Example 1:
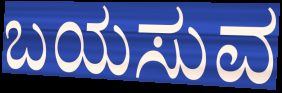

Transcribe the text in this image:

ಬಯಸುವ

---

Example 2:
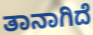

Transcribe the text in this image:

ತಾನಾಗಿದೆ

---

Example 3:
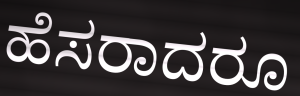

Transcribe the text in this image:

ಹೆಸರಾದರೂ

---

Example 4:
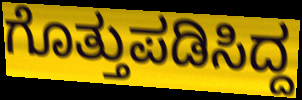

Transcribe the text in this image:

ಗೊತ್ತುಪಡಿಸಿದ್ದ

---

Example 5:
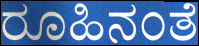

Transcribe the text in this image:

ರೂಹಿನಂತೆ